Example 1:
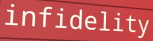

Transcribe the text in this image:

infidelity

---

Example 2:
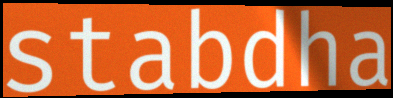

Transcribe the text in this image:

stabdha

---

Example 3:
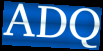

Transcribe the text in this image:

ADQ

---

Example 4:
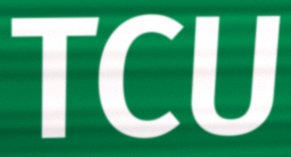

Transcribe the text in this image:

TCU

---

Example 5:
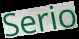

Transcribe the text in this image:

Serio